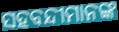
ସହବନ୍ଦୀମାନଙ୍କ